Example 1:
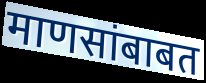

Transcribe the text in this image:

माणसांबाबत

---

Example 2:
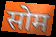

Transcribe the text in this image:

सोम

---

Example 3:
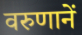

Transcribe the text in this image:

वरुणानें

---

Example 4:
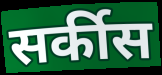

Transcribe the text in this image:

सर्कीस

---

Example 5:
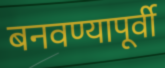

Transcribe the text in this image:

बनवण्यापूर्वी